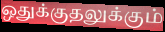
ஒதுக்குதலுக்கும்